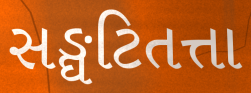
સઙ્ઘટિતત્તા